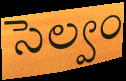
సెల్వం